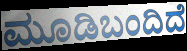
ಮೂಡಿಬಂದಿದೆ